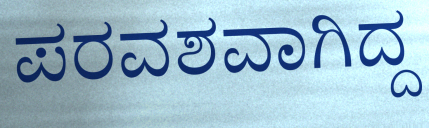
ಪರವಶವಾಗಿದ್ದ